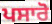
ਪਸਾਰੋ